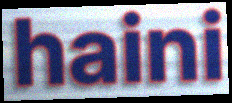
haini